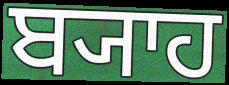
ਬ੍ਯਾਹ